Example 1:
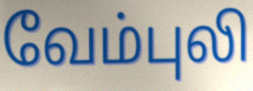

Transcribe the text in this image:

வேம்புலி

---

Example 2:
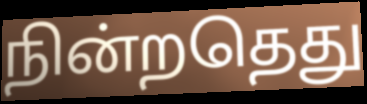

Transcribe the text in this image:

நின்றதெது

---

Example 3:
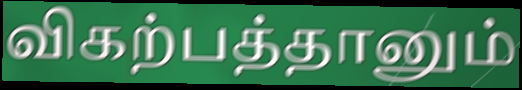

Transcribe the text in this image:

விகற்பத்தானும்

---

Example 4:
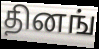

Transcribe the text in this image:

தினங்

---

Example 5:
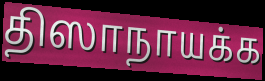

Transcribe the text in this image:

திஸாநாயக்க